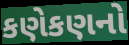
કણેકણનો